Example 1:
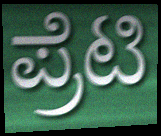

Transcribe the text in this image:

ಪ್ರೆಟಿ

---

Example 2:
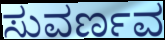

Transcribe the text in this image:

ಸುವರ್ಣವ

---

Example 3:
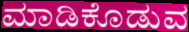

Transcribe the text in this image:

ಮಾಡಿಕೊಡುವ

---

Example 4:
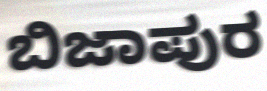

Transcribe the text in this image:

ಬಿಜಾಪುರ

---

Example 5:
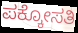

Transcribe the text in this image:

ಪಕ್ಕೋಸತಿ